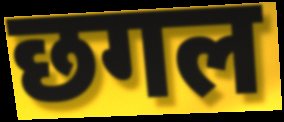
छगल